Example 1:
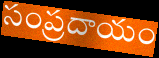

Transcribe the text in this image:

సంప్రదాయం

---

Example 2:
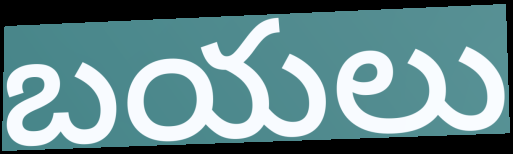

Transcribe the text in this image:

బయలు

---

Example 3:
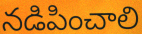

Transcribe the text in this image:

నడిపించాలి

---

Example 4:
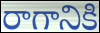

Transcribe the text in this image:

రాగానికి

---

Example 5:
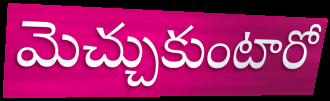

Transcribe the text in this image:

మెచ్చుకుంటారో